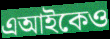
এআইকেও